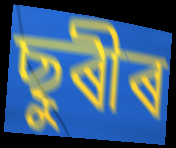
ছুৰীৰ